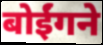
बोईंगने